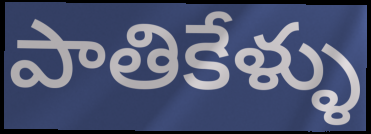
పాతికేళ్ళు